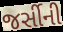
જર્સીની